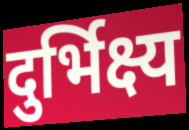
दुर्भिक्ष्य